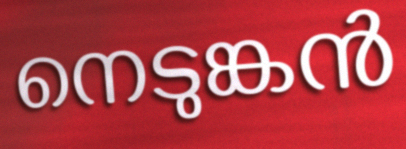
നെടുങ്കൻ